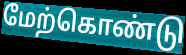
மேற்கொண்டு